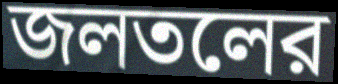
জলতলের